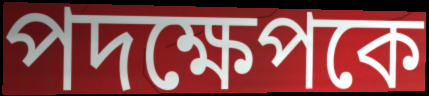
পদক্ষেপকে